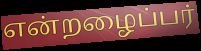
என்றழைப்பர்